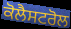
ਕੋਲੈਸਟਰੋਲ